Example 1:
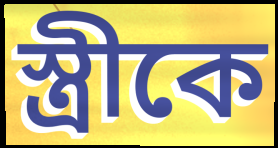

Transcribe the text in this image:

স্ত্রীকে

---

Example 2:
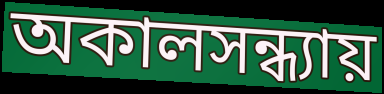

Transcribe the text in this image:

অকালসন্ধ্যায়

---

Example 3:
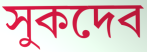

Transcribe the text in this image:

সুকদেব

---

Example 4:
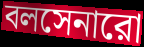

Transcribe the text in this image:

বলসেনারো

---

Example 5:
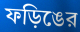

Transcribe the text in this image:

ফড়িঙের